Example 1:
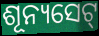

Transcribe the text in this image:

ଶୂନ୍ୟସେଟ୍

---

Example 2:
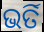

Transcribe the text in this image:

ଭର୍ତି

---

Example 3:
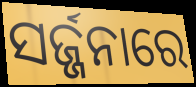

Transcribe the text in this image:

ସର୍ଜ୍ଜନାରେ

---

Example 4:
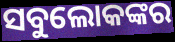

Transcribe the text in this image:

ସବୁଲୋକଙ୍କର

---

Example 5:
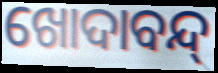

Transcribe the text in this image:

ଖୋଦାବନ୍ଦ୍